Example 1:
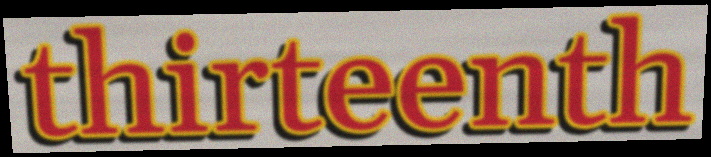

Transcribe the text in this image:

thirteenth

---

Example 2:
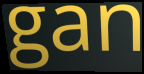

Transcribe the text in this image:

gan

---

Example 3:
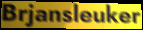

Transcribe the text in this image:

Brjansleuker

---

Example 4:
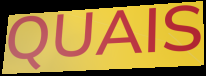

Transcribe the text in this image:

QUAIS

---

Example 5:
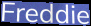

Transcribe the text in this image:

Freddie